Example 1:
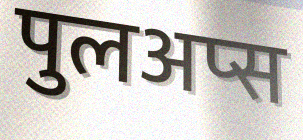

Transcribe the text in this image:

पुलअप्स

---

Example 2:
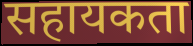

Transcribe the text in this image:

सहायकता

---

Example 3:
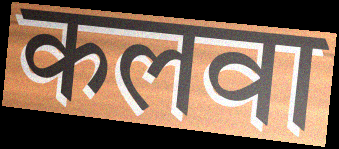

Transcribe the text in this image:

कलवा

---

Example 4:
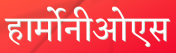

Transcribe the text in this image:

हार्मोनीओएस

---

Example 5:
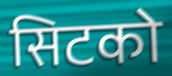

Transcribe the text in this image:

सिटको